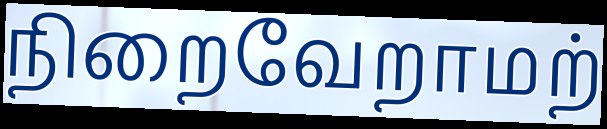
நிறைவேறாமற்